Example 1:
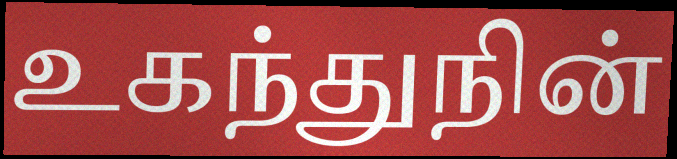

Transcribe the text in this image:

உகந்துநின்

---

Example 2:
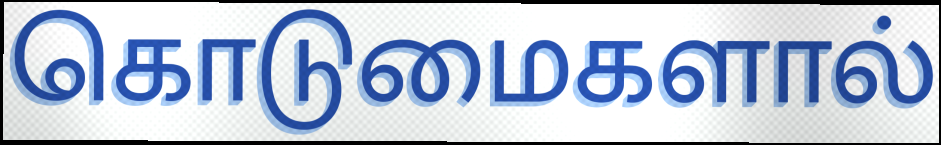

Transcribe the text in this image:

கொடுமைகளால்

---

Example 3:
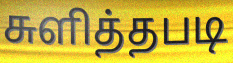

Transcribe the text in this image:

சுளித்தபடி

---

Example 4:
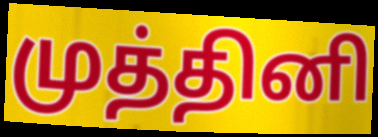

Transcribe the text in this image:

முத்தினி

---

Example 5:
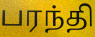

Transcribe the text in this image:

பரந்தி